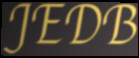
JEDB